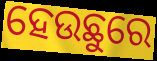
ହେଉଛୁରେ